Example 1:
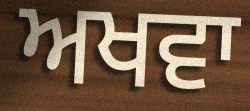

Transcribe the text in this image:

ਅਖਵਾ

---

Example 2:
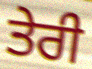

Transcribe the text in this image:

ਤੇਰੀ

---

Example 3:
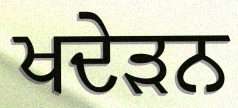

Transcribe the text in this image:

ਖਦੇੜਨ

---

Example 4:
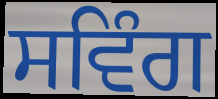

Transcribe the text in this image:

ਸਵਿੰਗ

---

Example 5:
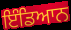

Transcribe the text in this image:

ਇੰਡਿਆਨ